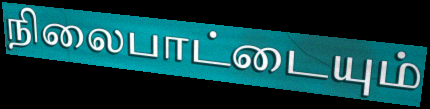
நிலைபாட்டையும்